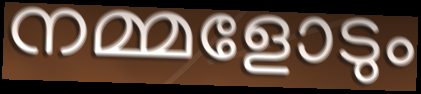
നമ്മളോടും